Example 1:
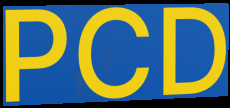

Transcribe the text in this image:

PCD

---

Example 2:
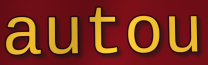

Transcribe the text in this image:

autou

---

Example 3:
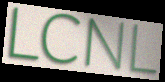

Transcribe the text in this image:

LCNL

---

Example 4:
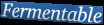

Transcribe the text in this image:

Fermentable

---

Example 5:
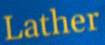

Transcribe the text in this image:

Lather